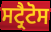
ਸਟ੍ਰੈਟੋਸ